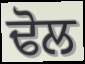
ਢੋਲ